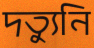
দত্যুনি